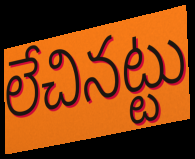
లేచినట్టు